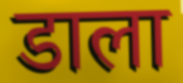
डाला